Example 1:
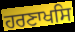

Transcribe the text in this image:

ਹਰਣਾਖਸਿ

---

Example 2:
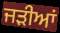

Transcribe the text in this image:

ਜੜੀਆਂ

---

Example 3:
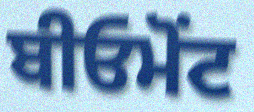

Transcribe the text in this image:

ਬੀਓਮੋਂਟ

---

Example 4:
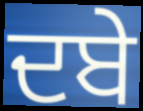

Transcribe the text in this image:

ਦਬੇ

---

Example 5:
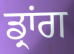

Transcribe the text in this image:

ਡ੍ਰਾਂਗ